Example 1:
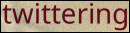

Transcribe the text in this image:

twittering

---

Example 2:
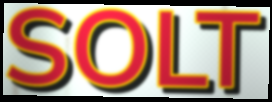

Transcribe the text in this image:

SOLT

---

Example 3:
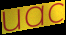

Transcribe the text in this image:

uac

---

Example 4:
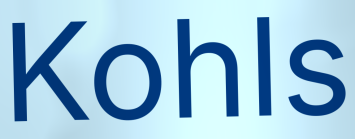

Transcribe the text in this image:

Kohls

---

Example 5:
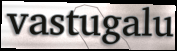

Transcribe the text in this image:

vastugalu